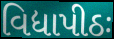
વિદ્યાપીઠઃ